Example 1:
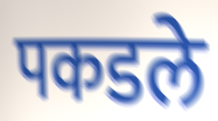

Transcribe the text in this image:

पकडले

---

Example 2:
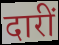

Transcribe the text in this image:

दारीं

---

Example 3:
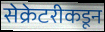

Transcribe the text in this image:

सेक्रेटरीकडून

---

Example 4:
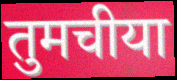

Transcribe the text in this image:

तुमचीया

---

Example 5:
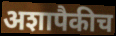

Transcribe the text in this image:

अशापैकीच